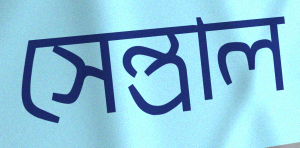
সেন্ত্রাল